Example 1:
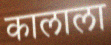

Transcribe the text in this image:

कालाला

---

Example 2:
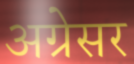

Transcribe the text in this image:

अग्रेसर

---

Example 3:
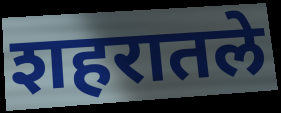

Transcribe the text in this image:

शहरातले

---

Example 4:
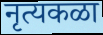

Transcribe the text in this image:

नृत्यकळा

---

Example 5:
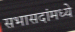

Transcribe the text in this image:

सभासदांमध्ये